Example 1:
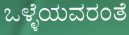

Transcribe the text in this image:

ಒಳ್ಳೆಯವರಂತೆ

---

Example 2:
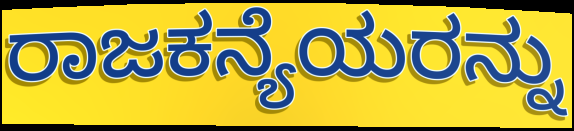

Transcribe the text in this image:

ರಾಜಕನ್ಯೆಯರನ್ನು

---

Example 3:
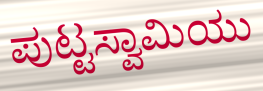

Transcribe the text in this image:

ಪುಟ್ಟಸ್ವಾಮಿಯು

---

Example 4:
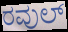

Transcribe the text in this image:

ರವುಲ್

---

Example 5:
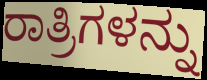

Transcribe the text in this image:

ರಾತ್ರಿಗಳನ್ನು